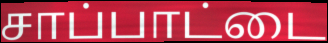
சாப்பாட்டை